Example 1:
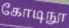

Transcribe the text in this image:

கோடிநூ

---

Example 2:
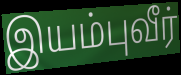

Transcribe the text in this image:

இயம்புவீர்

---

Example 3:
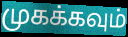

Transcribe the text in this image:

முகக்கவும்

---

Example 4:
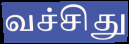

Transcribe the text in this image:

வச்சிது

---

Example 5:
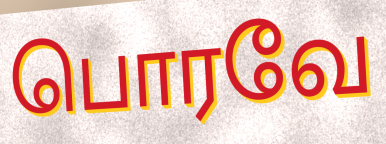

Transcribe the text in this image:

பொரவே